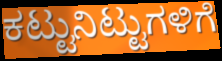
ಕಟ್ಟುನಿಟ್ಟುಗಳಿಗೆ